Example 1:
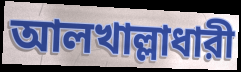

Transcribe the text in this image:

আলখাল্লাধারী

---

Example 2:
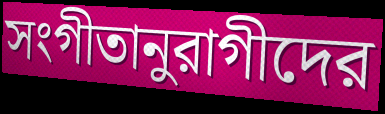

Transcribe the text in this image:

সংগীতানুরাগীদের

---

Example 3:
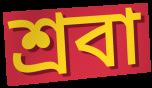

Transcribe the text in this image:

শ্রবা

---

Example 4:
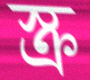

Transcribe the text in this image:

স্ক্র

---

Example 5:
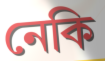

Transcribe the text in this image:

নেকি